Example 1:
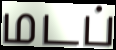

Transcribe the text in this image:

மடப்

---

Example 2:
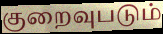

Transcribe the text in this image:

குறைவுபடும்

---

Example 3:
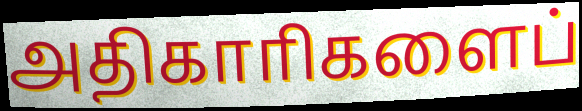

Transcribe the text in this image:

அதிகாரிகளைப்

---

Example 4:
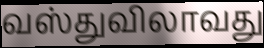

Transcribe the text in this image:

வஸ்துவிலாவது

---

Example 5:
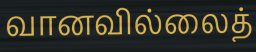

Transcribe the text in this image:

வானவில்லைத்